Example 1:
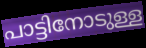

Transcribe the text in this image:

പാട്ടിനോടുള്ള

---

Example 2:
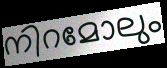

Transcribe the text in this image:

നിറമോലും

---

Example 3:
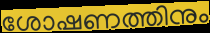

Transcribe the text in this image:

ശോഷണത്തിനും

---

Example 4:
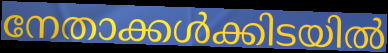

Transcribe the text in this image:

നേതാക്കൾക്കിടയിൽ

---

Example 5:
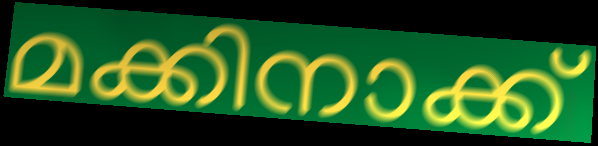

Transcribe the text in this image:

മക്കിനാക്ക്